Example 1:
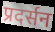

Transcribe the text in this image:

प्रदर्सन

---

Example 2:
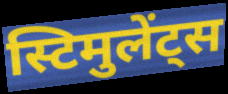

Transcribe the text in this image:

स्टिमुलेंट्स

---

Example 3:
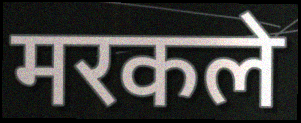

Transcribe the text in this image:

मरकले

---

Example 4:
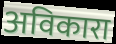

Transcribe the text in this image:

अविकारा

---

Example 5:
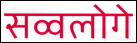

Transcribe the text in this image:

सव्वलोगे